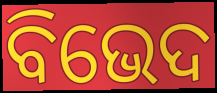
ବିଭେଦ